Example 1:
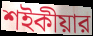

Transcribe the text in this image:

শইকীয়ার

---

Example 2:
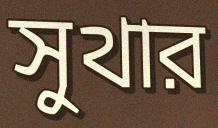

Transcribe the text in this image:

সুথার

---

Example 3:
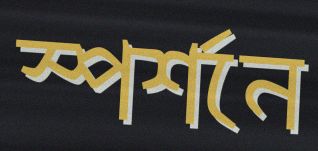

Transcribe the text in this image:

স্পর্শনে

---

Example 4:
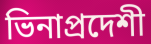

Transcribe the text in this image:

ভিনাপ্রদেশী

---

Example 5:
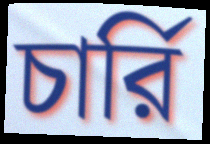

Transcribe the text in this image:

চার্রি